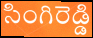
సింగిరెడ్డి